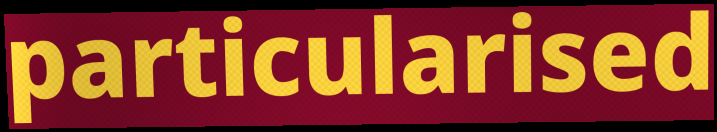
particularised